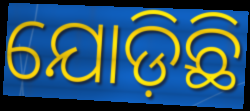
ଯୋଡ଼ିଛି